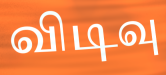
விடிவு